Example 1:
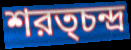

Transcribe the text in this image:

শরত্চন্দ্র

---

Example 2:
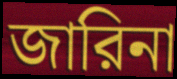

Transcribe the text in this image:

জারিনা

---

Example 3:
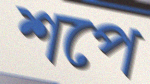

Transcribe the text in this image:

শপে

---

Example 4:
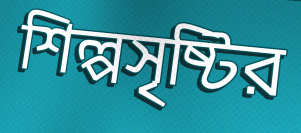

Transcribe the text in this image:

শিল্পসৃষ্টির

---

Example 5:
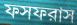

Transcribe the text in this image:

ফসফরাস